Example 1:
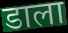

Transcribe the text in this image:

डाला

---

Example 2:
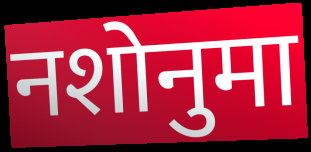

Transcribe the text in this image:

नशोनुमा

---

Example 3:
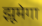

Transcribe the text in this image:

झूमेगा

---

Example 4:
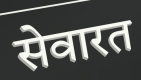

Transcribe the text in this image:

सेवारत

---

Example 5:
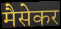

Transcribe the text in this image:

मैसेकर